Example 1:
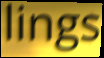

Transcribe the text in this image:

lings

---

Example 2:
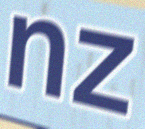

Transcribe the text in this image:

nz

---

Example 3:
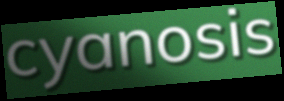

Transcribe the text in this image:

cyanosis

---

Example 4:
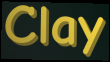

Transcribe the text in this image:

Clay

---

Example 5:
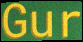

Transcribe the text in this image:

Gur